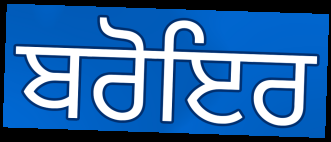
ਬਰੋਇਰ